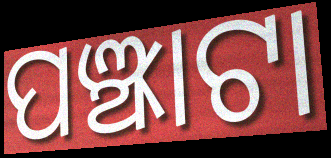
ପଞ୍ଝାଟା